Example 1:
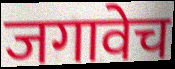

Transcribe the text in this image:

जगावेच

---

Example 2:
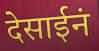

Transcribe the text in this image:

देसाईनं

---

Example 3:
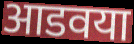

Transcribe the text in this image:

आडवया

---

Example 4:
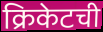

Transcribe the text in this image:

क्रिकेटची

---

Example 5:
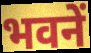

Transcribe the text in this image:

भवनें